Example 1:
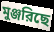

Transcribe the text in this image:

মুঞ্জরিছে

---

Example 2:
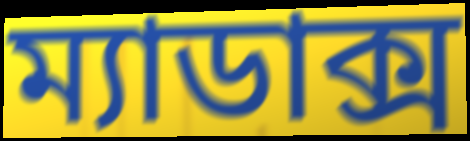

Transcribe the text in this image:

ম্যাডাক্স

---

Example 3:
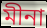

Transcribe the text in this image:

মীনা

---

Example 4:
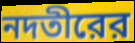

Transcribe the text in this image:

নদতীরের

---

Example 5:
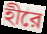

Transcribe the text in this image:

হীরে